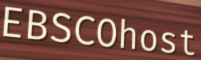
EBSCOhost